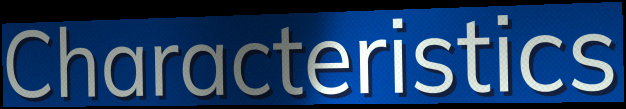
Characteristics